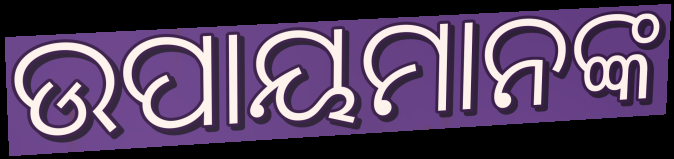
ଉପାୟମାନଙ୍କ